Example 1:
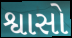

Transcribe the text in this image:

શ્વાસો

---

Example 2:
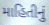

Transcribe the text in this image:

માહિતીનું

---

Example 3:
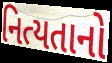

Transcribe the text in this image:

નિત્યતાનો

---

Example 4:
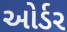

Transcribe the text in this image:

ઓર્ડર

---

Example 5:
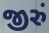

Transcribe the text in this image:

જીરું